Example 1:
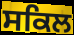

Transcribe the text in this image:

ਸਕਿਲ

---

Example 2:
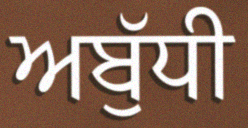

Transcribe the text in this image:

ਅਬੁੱਧੀ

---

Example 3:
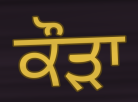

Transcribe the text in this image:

ਕੌਡ਼ਾ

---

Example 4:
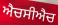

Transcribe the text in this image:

ਐਚਸੀਐਚ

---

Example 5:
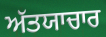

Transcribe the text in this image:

ਅੱਤਯਾਚਾਰ